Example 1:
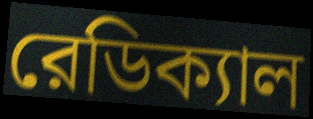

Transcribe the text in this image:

রেডিক্যাল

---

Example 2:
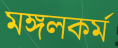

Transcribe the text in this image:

মঙ্গলকর্ম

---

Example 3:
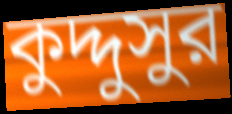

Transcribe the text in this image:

কুদ্দুসুর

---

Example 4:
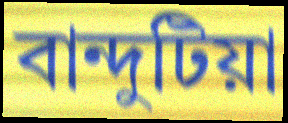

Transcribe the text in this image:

বান্দুটিয়া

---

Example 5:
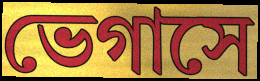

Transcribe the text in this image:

ভেগাসে